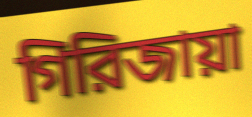
গিরিজায়া